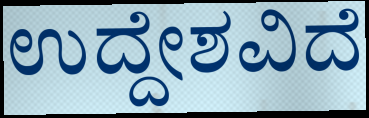
ಉದ್ದೇಶವಿದೆ